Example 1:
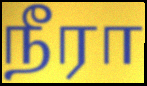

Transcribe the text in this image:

நீரா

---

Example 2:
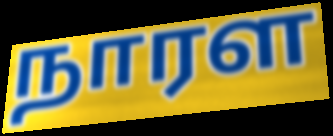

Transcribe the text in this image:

நாரள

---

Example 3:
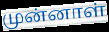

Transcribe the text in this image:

முன்னாள்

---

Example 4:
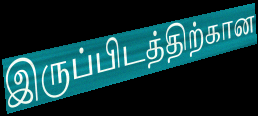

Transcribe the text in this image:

இருப்பிடத்திற்கான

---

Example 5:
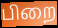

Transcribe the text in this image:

பிறை